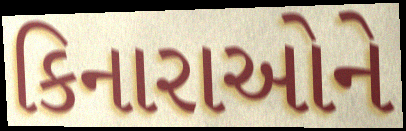
કિનારાઓને